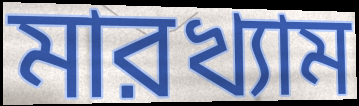
মারখ্যাম